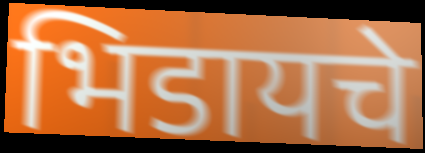
भिडायचे